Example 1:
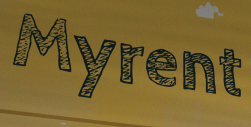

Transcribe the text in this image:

Myrent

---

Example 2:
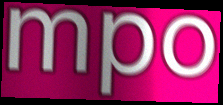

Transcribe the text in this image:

mpo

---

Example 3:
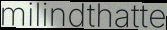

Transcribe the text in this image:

milindthatte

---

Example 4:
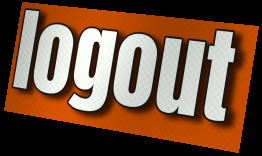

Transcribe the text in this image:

logout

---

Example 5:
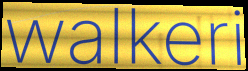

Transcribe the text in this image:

walkeri